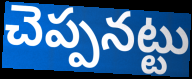
చెప్పనట్టు